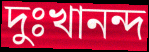
দুঃখানন্দ